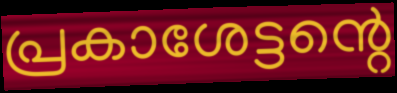
പ്രകാശേട്ടന്റെ